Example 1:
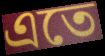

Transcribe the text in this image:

এতে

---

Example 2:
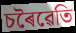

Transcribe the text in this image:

চৰৈৱেতি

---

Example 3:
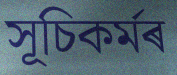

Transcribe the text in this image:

সূচিকৰ্মৰ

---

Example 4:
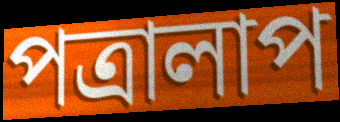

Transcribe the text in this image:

পত্ৰালাপ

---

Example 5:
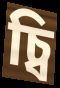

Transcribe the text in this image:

চ্বি